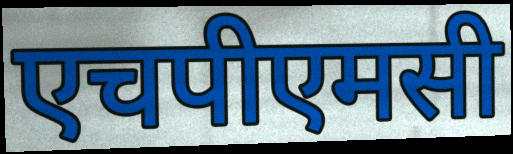
एचपीएमसी